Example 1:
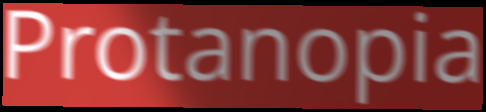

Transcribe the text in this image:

Protanopia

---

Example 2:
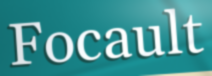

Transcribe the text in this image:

Focault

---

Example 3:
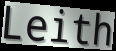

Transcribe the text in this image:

Leith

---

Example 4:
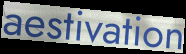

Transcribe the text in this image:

aestivation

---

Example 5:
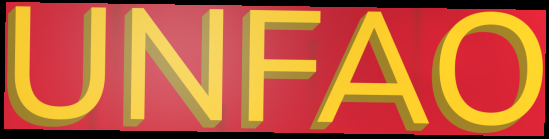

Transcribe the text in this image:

UNFAO